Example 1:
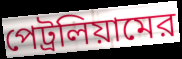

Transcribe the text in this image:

পেট্রলিয়ামের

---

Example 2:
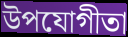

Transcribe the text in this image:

উপযোগীতা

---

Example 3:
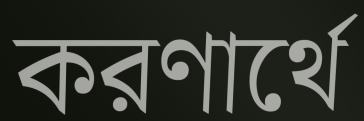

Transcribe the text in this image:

করণার্থে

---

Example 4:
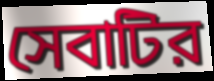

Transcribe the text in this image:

সেবাটির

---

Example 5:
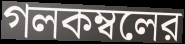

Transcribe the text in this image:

গলকম্বলের